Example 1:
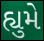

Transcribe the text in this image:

હ્યુમે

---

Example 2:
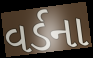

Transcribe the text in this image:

વર્ડના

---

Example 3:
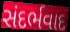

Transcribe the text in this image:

સંદર્ભવાદ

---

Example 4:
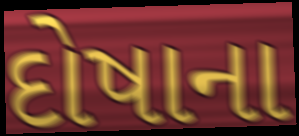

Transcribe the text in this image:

દોષાના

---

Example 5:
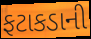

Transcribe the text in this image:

ફટાકડાની